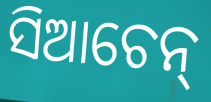
ସିଆଚେନ୍